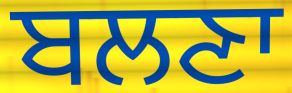
ਬਲਣਾ